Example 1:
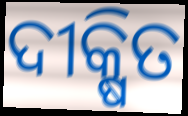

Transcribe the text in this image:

ଦୀକ୍ଷିତ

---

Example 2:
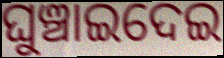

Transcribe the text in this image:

ଘୁଞ୍ଚାଇଦେଇ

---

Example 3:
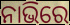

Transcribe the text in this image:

ନାଭିରେ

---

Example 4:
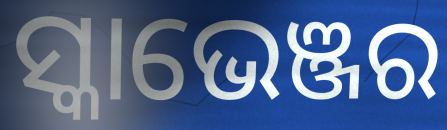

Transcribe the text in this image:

ସ୍କାଭେଞ୍ଜର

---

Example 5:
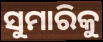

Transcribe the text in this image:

ସୁମାରିକୁ